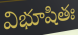
విభూషితః